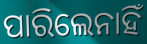
ପାରିଲେନାହିଁ